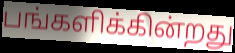
பங்களிக்கின்றது